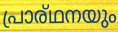
പ്രാര്ഥനയും